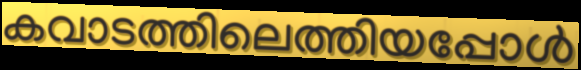
കവാടത്തിലെത്തിയപ്പോൾ